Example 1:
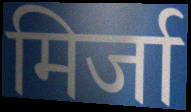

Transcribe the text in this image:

मिर्जा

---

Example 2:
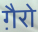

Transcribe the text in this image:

ग़ैरो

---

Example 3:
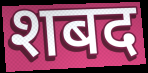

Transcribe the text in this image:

शबद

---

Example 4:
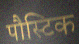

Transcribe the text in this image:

पौस्टिक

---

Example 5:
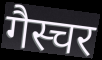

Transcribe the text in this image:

गैस्चर